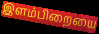
இளம்பிறையை